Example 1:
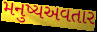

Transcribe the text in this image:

મનુષ્યઅવતાર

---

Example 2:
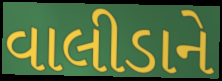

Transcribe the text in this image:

વાલીડાને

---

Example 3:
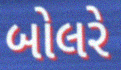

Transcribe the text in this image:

બોલરે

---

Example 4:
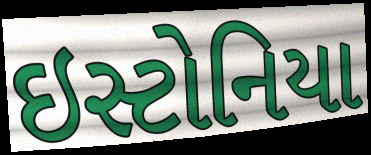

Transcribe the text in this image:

ઇસ્ટોનિયા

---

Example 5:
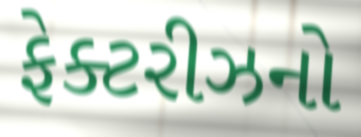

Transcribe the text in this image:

ફેક્ટરીઝનો